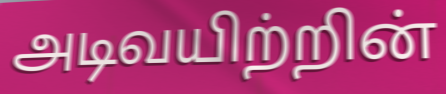
அடிவயிற்றின்